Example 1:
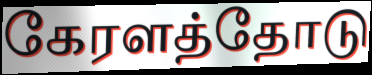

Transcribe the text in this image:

கேரளத்தோடு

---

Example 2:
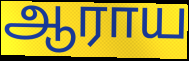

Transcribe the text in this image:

ஆராய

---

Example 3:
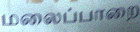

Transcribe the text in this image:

மலைப்பாறை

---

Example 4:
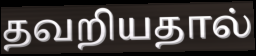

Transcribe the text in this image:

தவறியதால்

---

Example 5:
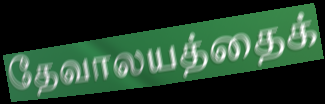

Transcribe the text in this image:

தேவாலயத்தைக்